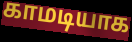
காமடியாக